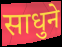
साधुने